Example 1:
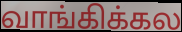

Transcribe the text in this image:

வாங்கிக்கல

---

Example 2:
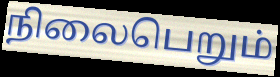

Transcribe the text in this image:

நிலைபெறும்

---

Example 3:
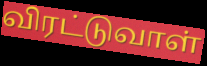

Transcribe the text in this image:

விரட்டுவாள்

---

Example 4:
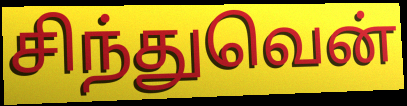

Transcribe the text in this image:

சிந்துவென்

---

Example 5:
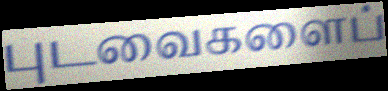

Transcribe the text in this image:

புடவைகளைப்